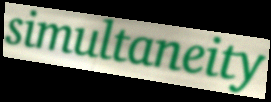
simultaneity